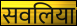
सवलिया